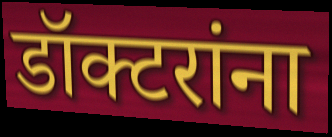
डॉक्टरांना